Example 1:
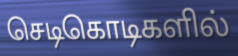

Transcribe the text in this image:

செடிகொடிகளில்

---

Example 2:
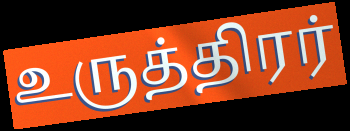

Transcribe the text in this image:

உருத்திரர்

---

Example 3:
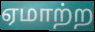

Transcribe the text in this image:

ஏமாற்ற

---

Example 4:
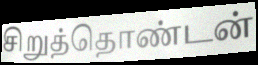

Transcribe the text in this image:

சிறுத்தொண்டன்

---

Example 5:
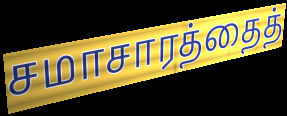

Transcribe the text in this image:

சமாசாரத்தைத்